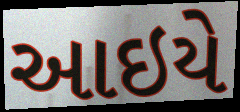
આઇયે